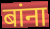
बांना